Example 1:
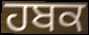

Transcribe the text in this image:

ਹਬਕ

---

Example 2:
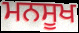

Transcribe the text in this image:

ਮਨਸੂਖ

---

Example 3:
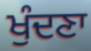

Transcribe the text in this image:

ਖੁੰਦਣਾ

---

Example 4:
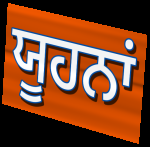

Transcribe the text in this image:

ਯੂਹਨਾਂ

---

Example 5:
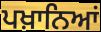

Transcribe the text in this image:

ਪਖ਼ਾਨਿਆਂ